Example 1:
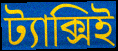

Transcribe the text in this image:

ট্যাক্সিই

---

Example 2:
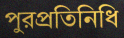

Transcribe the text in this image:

পুরপ্রতিনিধি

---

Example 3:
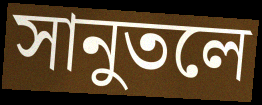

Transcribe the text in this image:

সানুতলে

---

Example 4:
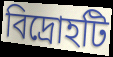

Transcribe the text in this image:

বিদ্রোহটি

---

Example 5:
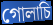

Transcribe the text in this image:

গোলাচি